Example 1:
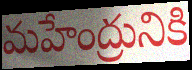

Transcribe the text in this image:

మహేంద్రునికి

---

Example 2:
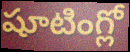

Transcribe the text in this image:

షూటింగ్లో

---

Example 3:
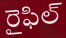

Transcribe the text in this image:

రైఫిల్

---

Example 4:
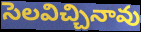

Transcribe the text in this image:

సెలవిచ్చినావు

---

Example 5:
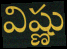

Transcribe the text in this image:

విష్ణు